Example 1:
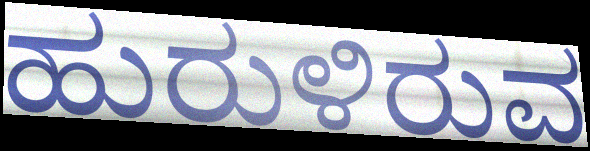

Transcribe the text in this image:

ಹುರುಳಿರುವ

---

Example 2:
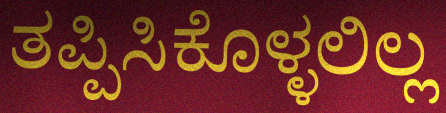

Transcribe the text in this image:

ತಪ್ಪಿಸಿಕೊಳ್ಳಲಿಲ್ಲ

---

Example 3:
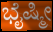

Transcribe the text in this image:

ಭೈಷ್ಮೀ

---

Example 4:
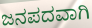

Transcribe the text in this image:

ಜನಪದವಾಗಿ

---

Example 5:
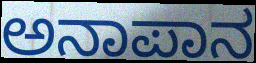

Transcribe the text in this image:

ಅನಾಪಾನ